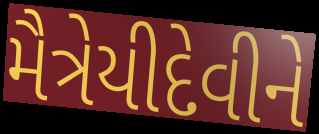
મૈત્રેયીદેવીને